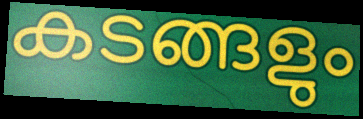
കടങ്ങളും